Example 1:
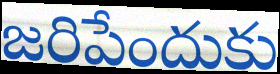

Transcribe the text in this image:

జరిపేందుకు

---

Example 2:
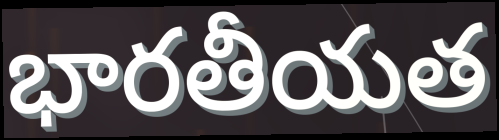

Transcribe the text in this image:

భారతీయత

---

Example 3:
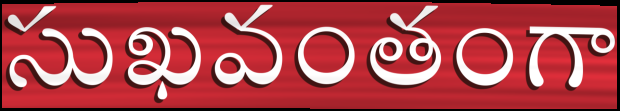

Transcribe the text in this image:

సుఖవంతంగా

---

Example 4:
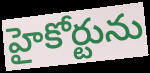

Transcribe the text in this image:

హైకోర్టును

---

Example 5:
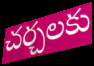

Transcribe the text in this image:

చర్చలకు